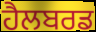
ਹੈਲਬਰਡ